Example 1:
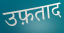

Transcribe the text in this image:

उफ़ताद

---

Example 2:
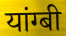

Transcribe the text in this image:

यांग्बी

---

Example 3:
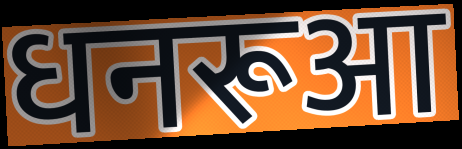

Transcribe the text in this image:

धनरूआ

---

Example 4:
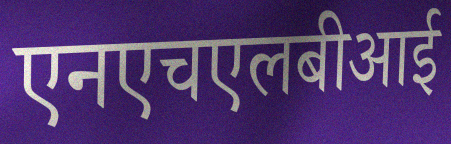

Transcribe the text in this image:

एनएचएलबीआई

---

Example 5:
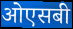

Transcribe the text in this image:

ओएसबी